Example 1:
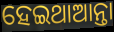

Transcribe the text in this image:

ହେଇଥାଆନ୍ତା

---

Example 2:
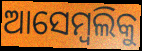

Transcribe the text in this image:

ଆସେମ୍ବଲିକୁ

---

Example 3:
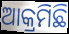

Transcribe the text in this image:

ଆକ୍ରମିଛି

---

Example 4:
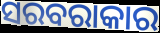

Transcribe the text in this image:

ସରବରାକାର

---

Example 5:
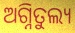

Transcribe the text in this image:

ଅଗ୍ନିତୁଲ୍ୟ